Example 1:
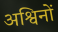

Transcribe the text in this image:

अश्विनों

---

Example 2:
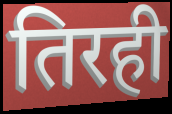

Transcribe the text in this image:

तिरही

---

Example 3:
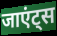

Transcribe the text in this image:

जाएंट्स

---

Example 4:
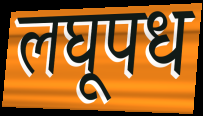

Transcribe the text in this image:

लघूपध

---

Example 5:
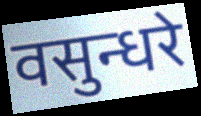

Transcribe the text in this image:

वसुन्धरे